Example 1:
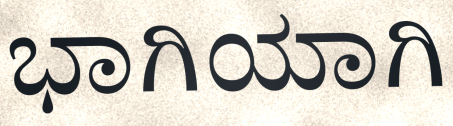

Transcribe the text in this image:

ಭಾಗಿಯಾಗಿ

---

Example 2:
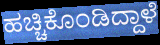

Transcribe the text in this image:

ಹಚ್ಚಿಕೊಂಡಿದ್ದಾಳೆ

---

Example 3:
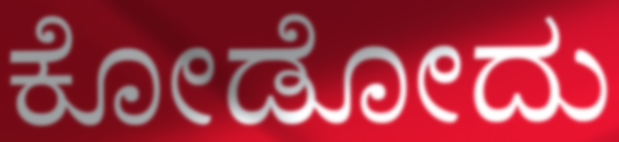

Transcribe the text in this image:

ಕೋಡೋದು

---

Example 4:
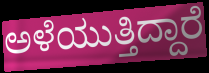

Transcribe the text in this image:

ಅಳೆಯುತ್ತಿದ್ದಾರೆ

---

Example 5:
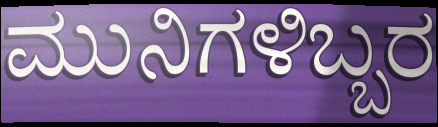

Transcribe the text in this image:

ಮುನಿಗಳಿಬ್ಬರ